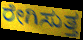
ರೇಗಿಸುತ್ತ